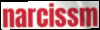
narcissm